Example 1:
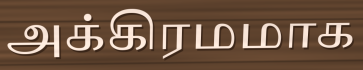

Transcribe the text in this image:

அக்கிரமமாக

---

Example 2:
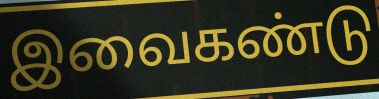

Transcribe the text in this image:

இவைகண்டு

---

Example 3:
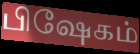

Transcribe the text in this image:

பிஷேகம்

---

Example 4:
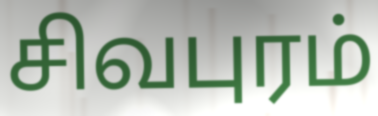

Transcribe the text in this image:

சிவபுரம்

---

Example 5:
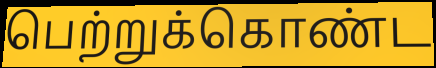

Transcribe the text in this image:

பெற்றுக்கொண்ட